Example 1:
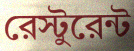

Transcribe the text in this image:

রেস্টুরেন্ট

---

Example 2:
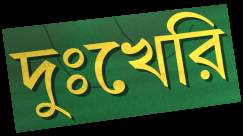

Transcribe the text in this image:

দুঃখেরি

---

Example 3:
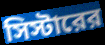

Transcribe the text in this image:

সিস্টারের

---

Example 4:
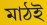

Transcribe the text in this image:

মাঠই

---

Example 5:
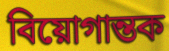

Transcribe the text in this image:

বিয়োগান্তক